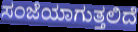
ಸಂಜೆಯಾಗುತ್ತಲಿದೆ